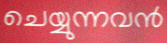
ചെയ്യുന്നവൻ